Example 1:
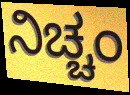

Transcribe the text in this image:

ನಿಚ್ಚಂ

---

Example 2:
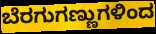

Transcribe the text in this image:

ಬೆರಗುಗಣ್ಣುಗಳಿಂದ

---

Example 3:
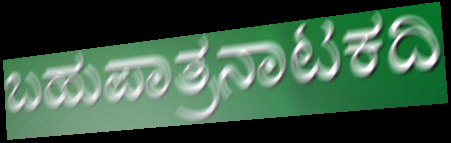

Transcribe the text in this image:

ಬಹುಪಾತ್ರನಾಟಕದಿ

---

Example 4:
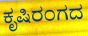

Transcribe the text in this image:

ಕೃಷಿರಂಗದ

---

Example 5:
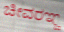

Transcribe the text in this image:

ಚೀವರಞ್ಚ